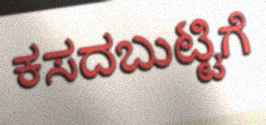
ಕಸದಬುಟ್ಟಿಗೆ